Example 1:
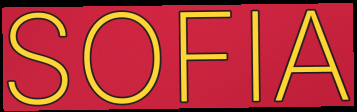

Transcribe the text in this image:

SOFIA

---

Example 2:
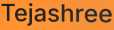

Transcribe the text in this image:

Tejashree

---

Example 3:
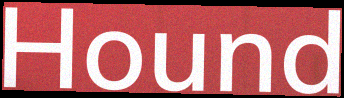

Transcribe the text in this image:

Hound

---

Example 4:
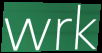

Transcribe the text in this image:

wrk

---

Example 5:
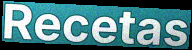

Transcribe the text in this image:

Recetas